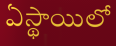
ఏస్థాయిలో